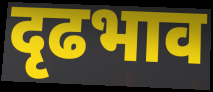
दृढभाव